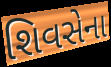
શિવસેના